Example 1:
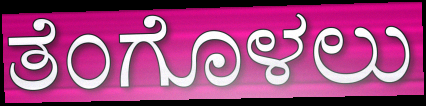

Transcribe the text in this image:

ತೆಂಗೊಳಲು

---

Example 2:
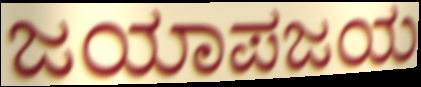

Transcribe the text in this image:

ಜಯಾಪಜಯ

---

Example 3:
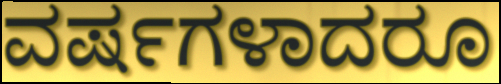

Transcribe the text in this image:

ವರ್ಷಗಳಾದರೂ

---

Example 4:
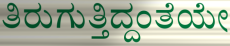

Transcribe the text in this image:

ತಿರುಗುತ್ತಿದ್ದಂತೆಯೇ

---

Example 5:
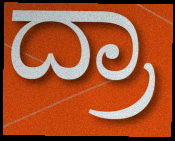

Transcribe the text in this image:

ದ್ರಾ